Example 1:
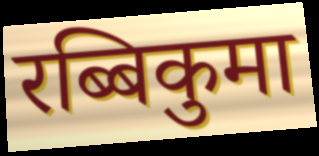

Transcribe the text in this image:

रब्बिकुमा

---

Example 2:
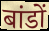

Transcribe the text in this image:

बांडों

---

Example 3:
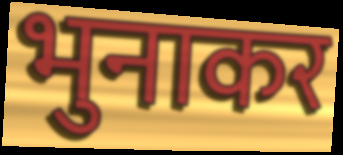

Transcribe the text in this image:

भुनाकर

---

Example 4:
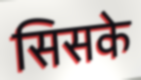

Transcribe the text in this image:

सिसके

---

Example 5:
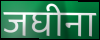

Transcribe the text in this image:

जघीना